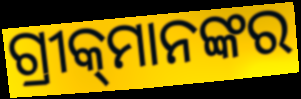
ଗ୍ରୀକ୍‌ମାନଙ୍କର